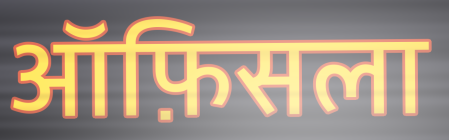
ऑफ़िसला